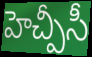
హెచ్పీసీ